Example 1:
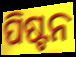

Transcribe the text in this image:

ପିଷ୍ଟନ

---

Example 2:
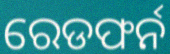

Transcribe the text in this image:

ରେଡଫର୍ନ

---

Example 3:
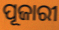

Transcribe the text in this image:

ପୂଜାରୀ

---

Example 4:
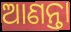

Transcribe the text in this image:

ଆଣନ୍ତା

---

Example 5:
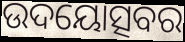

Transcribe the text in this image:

ଉଦୟୋତ୍ସବର